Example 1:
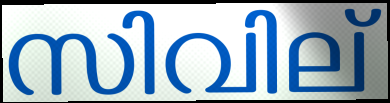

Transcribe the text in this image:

സിവില്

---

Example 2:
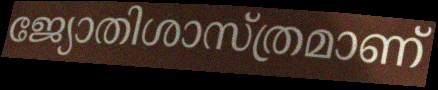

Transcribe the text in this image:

ജ്യോതിശാസ്ത്രമാണ്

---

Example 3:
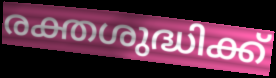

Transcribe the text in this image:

രക്തശുദ്ധിക്ക്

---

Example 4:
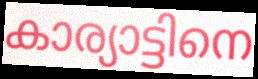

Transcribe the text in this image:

കാര്യാട്ടിനെ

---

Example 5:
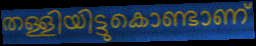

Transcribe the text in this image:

തള്ളിയിട്ടുകൊണ്ടാണ്